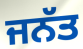
ਜਨੱਤ